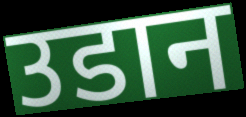
उडान